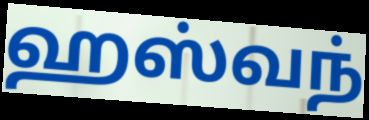
ஹஸ்வந்